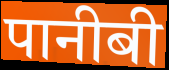
पानीबी